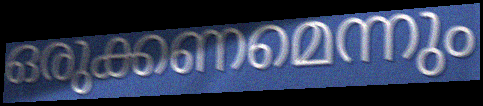
ഒരുക്കണമെന്നും